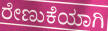
ರೇಣುಕೆಯಾಗಿ